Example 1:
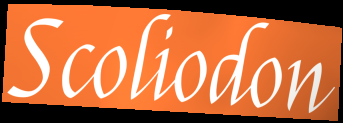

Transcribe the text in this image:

Scoliodon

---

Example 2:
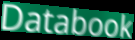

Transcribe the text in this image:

Databook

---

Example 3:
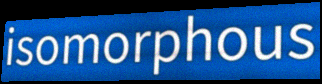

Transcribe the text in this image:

isomorphous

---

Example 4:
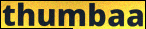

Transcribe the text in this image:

thumbaa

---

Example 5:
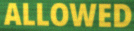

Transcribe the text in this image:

ALLOWED